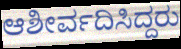
ಆಶೀರ್ವದಿಸಿದ್ದರು